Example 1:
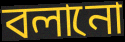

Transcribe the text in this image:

বলানো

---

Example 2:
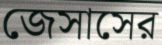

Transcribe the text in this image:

জেসাসের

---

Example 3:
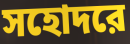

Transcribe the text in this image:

সহোদরে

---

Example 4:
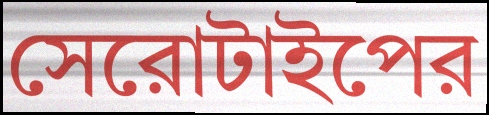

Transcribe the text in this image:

সেরোটাইপের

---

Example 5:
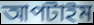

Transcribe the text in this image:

আপটাইম